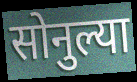
सोनुल्या